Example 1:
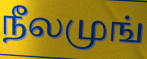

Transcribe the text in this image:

நீலமுங்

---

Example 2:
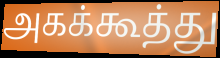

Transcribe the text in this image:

அகக்கூத்து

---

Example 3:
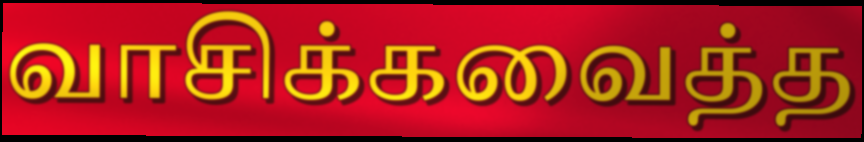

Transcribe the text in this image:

வாசிக்கவைத்த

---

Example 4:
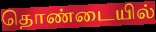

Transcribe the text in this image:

தொண்டையில்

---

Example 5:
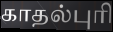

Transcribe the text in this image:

காதல்புரி